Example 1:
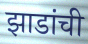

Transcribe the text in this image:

झाडांची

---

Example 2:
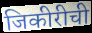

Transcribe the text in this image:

जिकीरीची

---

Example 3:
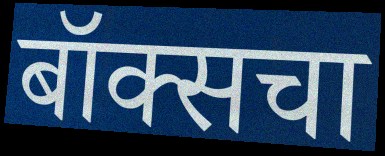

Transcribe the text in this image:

बॉक्सचा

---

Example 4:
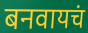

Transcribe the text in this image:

बनवायचं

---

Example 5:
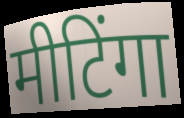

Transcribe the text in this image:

मीटिंगा